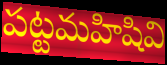
పట్టమహిషివి